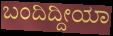
ಬಂದಿದ್ದೀಯಾ